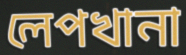
লেপখানা